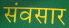
संवसार